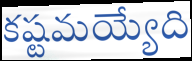
కష్టమయ్యేది